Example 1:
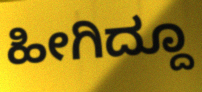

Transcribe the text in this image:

ಹೀಗಿದ್ದೂ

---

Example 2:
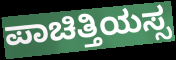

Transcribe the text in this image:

ಪಾಚಿತ್ತಿಯಸ್ಸ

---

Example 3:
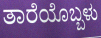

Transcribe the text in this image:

ತಾರೆಯೊಬ್ಬಳು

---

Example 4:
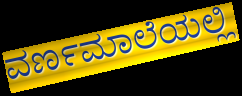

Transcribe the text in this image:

ವರ್ಣಮಾಲೆಯಲ್ಲಿ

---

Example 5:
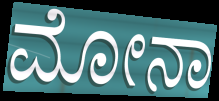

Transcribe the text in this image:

ಮೋನಾ